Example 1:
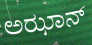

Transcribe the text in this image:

ಅಝಾನ್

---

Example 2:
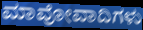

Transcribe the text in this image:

ಮಾವೋವಾದಿಗಳು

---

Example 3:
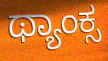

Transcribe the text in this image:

ಥ್ಯಾಂಕ್ಸ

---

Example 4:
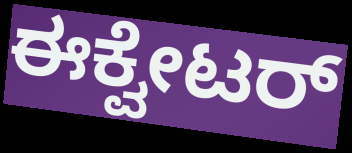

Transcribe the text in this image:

ಈಕ್ವೇಟರ್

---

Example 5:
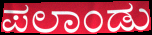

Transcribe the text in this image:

ಪಲಾಂಡು